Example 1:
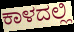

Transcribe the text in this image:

ಕಾಳದಲ್ಲಿ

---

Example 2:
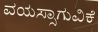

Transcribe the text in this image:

ವಯಸ್ಸಾಗುವಿಕೆ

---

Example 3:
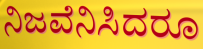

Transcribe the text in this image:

ನಿಜವೆನಿಸಿದರೂ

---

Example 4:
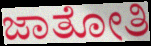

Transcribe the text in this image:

ಜಾತೋತಿ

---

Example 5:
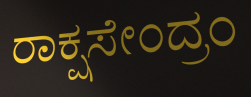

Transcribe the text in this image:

ರಾಕ್ಷಸೇಂದ್ರಂ